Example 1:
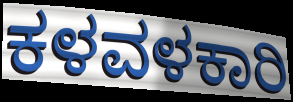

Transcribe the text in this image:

ಕಳವಳಕಾರಿ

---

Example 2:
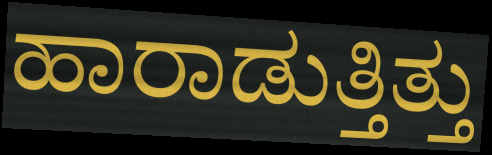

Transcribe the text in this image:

ಹಾರಾಡುತ್ತಿತ್ತು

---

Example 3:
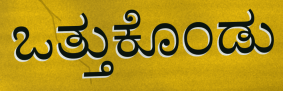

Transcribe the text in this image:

ಒತ್ತುಕೊಂಡು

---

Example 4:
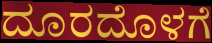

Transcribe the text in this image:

ದೂರದೊಳಗೆ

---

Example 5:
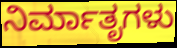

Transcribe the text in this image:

ನಿರ್ಮಾತೃಗಳು